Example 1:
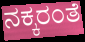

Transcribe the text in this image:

ನಕ್ಕರಂತೆ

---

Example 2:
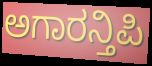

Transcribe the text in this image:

ಅಗಾರನ್ತಿಪಿ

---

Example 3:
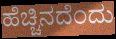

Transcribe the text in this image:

ಹೆಚ್ಚಿನದೆಂದು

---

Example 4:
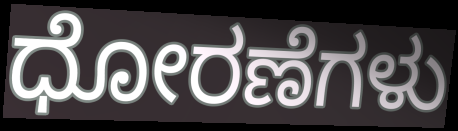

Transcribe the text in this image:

ಧೋರಣೆಗಳು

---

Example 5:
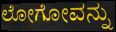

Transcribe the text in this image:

ಲೋಗೋವನ್ನು